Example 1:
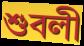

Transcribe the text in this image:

শুবলী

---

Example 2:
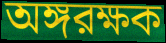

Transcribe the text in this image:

অঙ্গরক্ষক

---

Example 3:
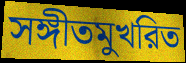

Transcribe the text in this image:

সঙ্গীতমুখরিত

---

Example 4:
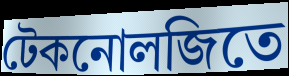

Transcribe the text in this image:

টেকনোলজিতে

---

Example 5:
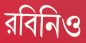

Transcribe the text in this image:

রবিনিও